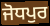
ਜੋਧਪੁਰ